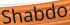
Shabdo